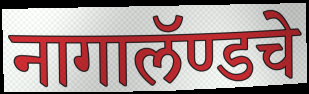
नागालॅण्डचे